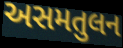
અસમતુલન